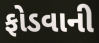
ફોડવાની